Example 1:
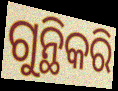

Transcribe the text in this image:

ଗୁନ୍ଥିକରି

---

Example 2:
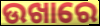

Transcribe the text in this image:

ଉଖାରେ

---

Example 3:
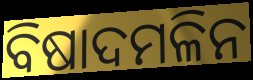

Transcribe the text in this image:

ବିଷାଦମଳିନ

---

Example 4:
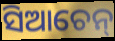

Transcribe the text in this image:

ସିଆଚେନ୍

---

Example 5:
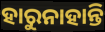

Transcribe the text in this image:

ହାରୁନାହାନ୍ତି